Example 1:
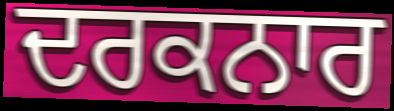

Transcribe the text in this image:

ਦਰਕਨਾਰ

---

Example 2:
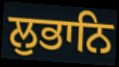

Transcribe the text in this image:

ਲੁਭਾਨਿ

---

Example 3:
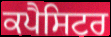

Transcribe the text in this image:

ਕਪੈਸਿਟਰ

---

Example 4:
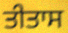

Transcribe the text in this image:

ਤੀਤਾਸ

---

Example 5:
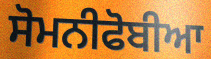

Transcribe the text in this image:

ਸੋਮਨੀਫੋਬੀਆ